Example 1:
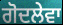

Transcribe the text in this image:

ਗੋਦਲੇਵਾ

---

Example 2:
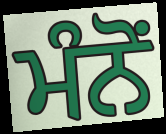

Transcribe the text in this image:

ਮੰਨੋਂ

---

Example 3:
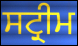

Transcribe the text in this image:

ਸਟ੍ਰੀਮ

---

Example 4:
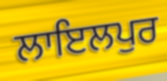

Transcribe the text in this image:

ਲਾਇਲਪੁਰ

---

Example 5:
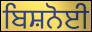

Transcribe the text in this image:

ਬਿਸ਼ਨੋਈ